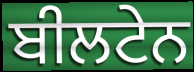
ਬੀਲਟੇਨ